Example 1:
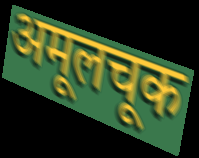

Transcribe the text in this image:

अमूलचूक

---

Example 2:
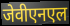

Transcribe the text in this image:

जेवीएनएल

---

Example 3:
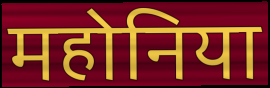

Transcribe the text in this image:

महोनिया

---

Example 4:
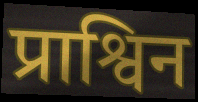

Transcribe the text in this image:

प्राश्विन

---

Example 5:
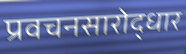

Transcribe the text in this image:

प्रवचनसारोद्धार